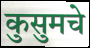
कुसुमचे